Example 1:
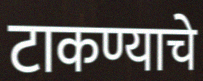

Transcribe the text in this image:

टाकण्याचे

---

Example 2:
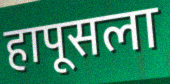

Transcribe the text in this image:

हापूसला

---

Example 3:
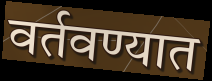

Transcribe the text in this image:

वर्तवण्यात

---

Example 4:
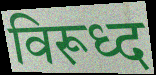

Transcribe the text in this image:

विरूध्द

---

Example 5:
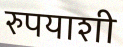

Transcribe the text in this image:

रुपयाशी